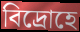
বিদ্রোহে